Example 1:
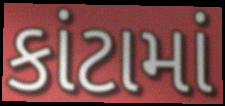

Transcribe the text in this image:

કાંટામાં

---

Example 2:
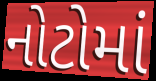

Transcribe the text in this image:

નોટોમાં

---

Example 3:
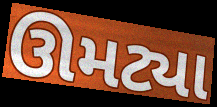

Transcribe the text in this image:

ઊમટ્યા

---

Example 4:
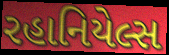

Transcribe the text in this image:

રહાનિયેલ્સ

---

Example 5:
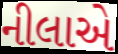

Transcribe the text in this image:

નીલાએ